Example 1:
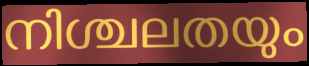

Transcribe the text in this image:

നിശ്ചലതയും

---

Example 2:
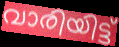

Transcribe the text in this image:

വാരിയിട്ട്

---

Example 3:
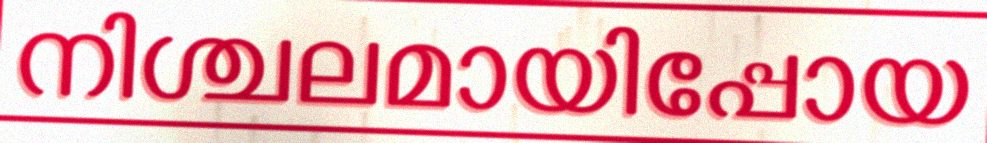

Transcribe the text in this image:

നിശ്ചലമായിപ്പോയ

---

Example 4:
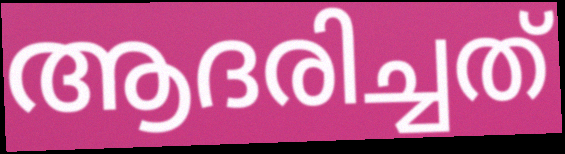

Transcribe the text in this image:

ആദരിച്ചത്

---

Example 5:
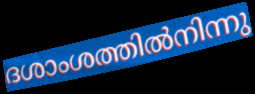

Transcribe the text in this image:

ദശാംശത്തിൽനിന്നു